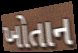
ખોતાન